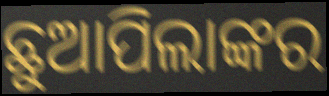
ଛୁଆପିଲାଙ୍କର